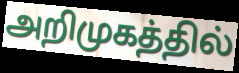
அறிமுகத்தில்